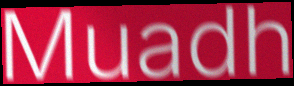
Muadh